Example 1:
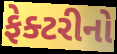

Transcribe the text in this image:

ફેક્ટરીનો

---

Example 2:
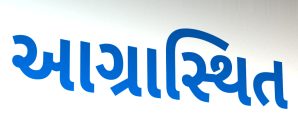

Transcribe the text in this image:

આગ્રાસ્થિત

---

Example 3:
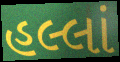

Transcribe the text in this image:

હલ્લાં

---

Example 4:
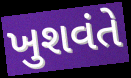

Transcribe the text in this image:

ખુશવંતે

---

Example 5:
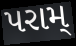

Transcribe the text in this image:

પરામ્